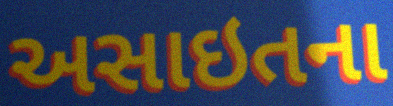
અસાઇતના